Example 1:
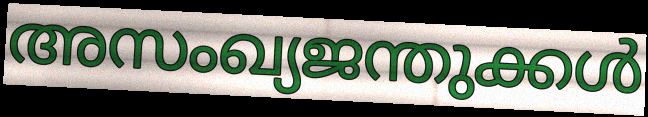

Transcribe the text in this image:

അസംഖ്യജന്തുക്കൾ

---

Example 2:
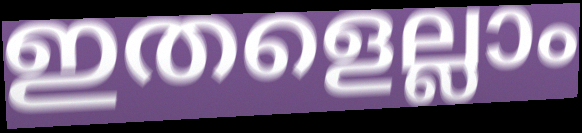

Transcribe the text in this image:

ഇതളെല്ലാം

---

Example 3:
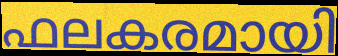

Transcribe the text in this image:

ഫലകരമായി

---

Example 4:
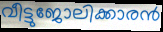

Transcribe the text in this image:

വീട്ടുജോലിക്കാരൻ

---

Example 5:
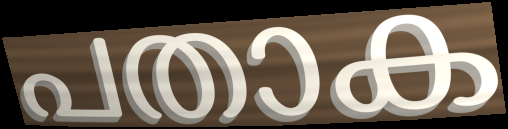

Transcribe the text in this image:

പതാക